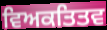
ਵਿਅਕਤਿਤਵ